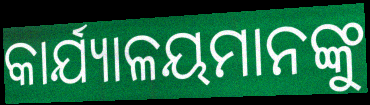
କାର୍ଯ୍ୟାଳୟମାନଙ୍କୁ